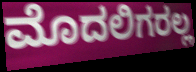
ಮೊದಲಿಗರಲ್ಲ